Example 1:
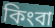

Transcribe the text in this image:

কিংবা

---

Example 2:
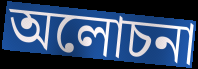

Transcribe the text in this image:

অলোচনা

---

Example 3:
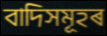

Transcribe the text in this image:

বাদিসমূহৰ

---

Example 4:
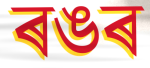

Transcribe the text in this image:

ৰঙৰ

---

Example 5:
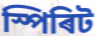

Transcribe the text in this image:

স্পিৰিট